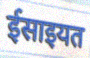
ईसाइयत